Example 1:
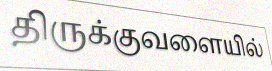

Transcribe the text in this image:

திருக்குவளையில்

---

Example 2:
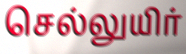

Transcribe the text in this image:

செல்லுயிர்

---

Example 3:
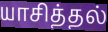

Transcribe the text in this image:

யாசித்தல்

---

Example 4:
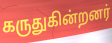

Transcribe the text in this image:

கருதுகின்றனர்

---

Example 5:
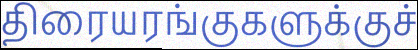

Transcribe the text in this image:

திரையரங்குகளுக்குச்